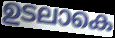
ഉടലാകെ